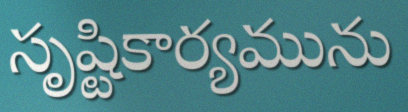
సృష్టికార్యమును